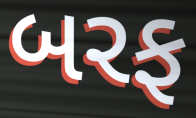
બરફ